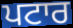
ਪਟਾਰ